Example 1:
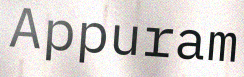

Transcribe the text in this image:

Appuram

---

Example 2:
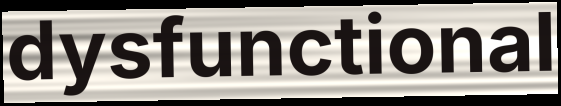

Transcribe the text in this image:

dysfunctional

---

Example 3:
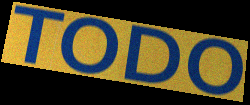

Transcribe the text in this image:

TODO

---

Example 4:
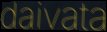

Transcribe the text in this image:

daivata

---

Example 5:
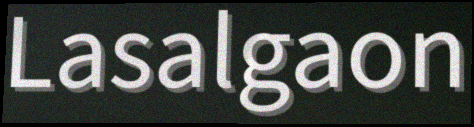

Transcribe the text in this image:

Lasalgaon